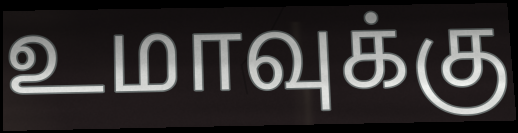
உமாவுக்கு